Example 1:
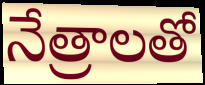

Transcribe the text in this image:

నేత్రాలతో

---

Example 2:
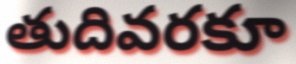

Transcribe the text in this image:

తుదివరకూ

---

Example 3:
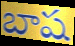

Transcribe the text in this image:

బాష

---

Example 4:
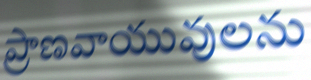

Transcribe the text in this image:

ప్రాణవాయువులను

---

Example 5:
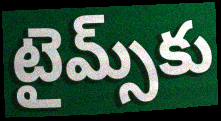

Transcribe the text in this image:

టైమ్స్‌కు